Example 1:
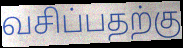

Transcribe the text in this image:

வசிப்பதற்கு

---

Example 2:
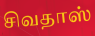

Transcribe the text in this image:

சிவதாஸ்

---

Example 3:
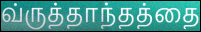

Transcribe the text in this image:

வ்ருத்தாந்தத்தை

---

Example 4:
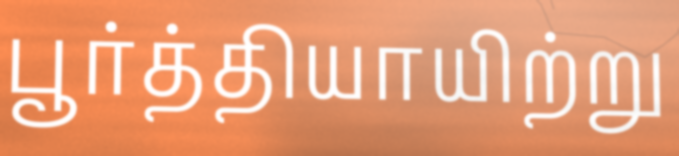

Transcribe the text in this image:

பூர்த்தியாயிற்று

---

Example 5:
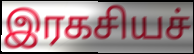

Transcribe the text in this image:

இரகசியச்